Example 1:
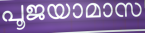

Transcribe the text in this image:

പൂജയാമാസ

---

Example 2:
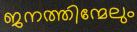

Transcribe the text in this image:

ജനത്തിന്മേലും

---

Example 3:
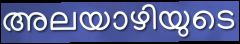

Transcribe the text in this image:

അലയാഴിയുടെ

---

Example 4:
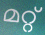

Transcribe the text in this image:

മറ്റ്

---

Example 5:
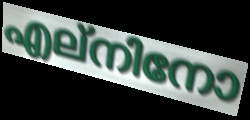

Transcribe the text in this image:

എല്നിനോ